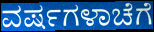
ವರ್ಷಗಳಾಚೆಗೆ